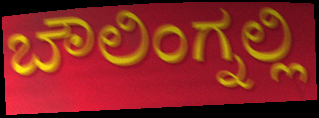
ಬೌಲಿಂಗ್ನಲ್ಲಿ